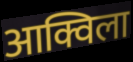
आक्विला